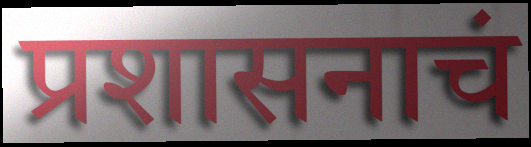
प्रशासनाचं